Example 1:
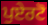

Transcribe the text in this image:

ਪੁਏਰਟੋ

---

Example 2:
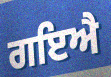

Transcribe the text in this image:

ਗਇਐ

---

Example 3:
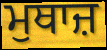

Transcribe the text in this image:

ਮੁਥਾਜ਼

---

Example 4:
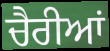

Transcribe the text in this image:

ਚੈਰੀਆਂ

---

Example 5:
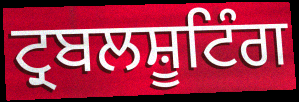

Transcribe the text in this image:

ਟ੍ਰਬਲਸ਼ੂਟਿੰਗ